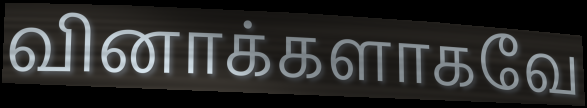
வினாக்களாகவே